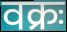
वक्रः